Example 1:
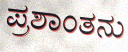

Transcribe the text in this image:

ಪ್ರಶಾಂತನು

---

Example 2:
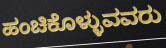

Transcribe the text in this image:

ಹಂಚಿಕೊಳ್ಳುವವರು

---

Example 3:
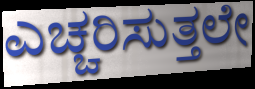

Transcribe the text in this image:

ಎಚ್ಚರಿಸುತ್ತಲೇ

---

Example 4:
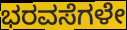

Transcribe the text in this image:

ಭರವಸೆಗಳೇ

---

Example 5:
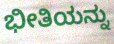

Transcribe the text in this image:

ಭೀತಿಯನ್ನು